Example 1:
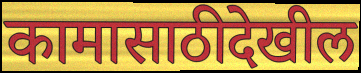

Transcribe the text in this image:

कामासाठीदेखील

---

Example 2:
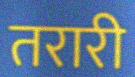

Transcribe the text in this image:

तरारी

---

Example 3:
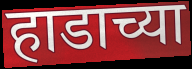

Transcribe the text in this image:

हाडाच्या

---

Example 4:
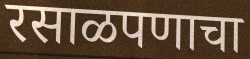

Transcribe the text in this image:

रसाळपणाचा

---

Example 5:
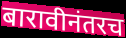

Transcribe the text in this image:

बारावीनंतरच